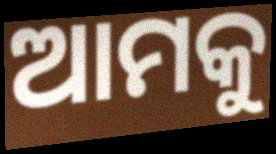
ଆମକୁ